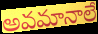
అవమానాలే